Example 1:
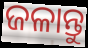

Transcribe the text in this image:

ଜଳାନ୍ତୁ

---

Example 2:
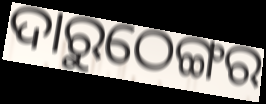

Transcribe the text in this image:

ଦାରୁଠେଙ୍ଗର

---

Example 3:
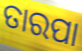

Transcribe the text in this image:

ତାରପା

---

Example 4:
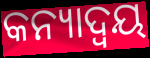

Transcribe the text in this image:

କନ୍ୟାଦ୍ୱୟ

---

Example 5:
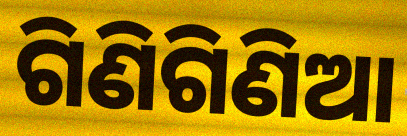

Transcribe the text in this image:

ଗିଣିଗିଣିଆ